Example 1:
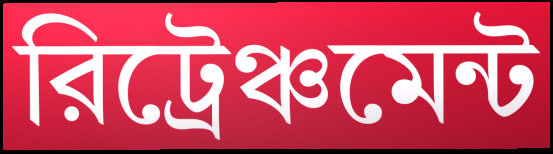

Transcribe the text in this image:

রিট্রেঞ্চমেন্ট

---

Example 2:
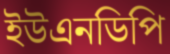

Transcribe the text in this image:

ইউএনডিপি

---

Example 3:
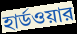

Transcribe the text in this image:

হার্ডওয়ার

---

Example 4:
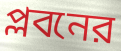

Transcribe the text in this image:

প্লবনের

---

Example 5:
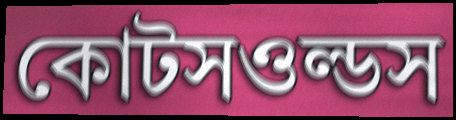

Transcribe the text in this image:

কোটসওল্ডস